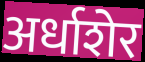
अर्धाशेर